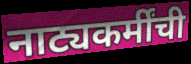
नाट्यकर्मींची